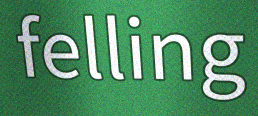
felling